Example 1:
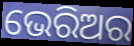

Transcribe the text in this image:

ଭେରିଅର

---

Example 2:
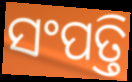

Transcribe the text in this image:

ସଂପତ୍ତି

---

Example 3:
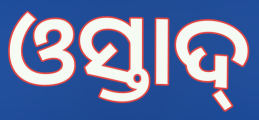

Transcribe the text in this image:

ଓସ୍ତାଦ୍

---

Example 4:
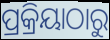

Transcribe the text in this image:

ପ୍ରକ୍ରିୟାଠାରୁ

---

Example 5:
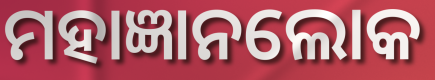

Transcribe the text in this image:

ମହାଜ୍ଞାନଲୋକ